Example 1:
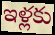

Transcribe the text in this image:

ఇళ్లకు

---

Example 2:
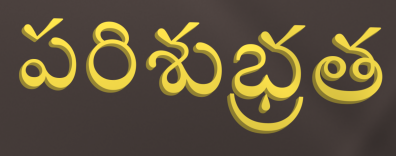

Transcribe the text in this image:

పరిశుభ్రత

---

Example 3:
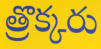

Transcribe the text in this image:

త్రొక్కరు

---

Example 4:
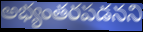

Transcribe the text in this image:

అభ్యంతరపడనని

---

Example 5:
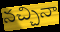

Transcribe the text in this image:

నచ్చినా